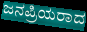
ಜನಪ್ರಿಯರಾದ